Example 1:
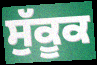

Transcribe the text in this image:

ਸੁੱਕੂਕ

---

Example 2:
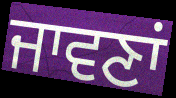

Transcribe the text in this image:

ਜਾਵਣਾਂ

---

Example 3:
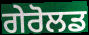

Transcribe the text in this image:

ਗੇਰੋਲਡ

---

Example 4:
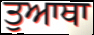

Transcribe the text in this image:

ਤੁਆਥਾ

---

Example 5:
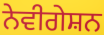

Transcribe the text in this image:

ਨੇਵੀਗੇਸ਼ਨ